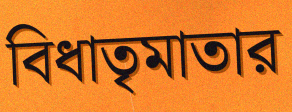
বিধাতৃমাতার